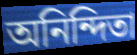
অনিন্দিতা